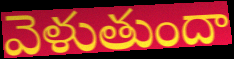
వెళుతుందా